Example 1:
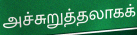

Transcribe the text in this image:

அச்சுறுத்தலாகக்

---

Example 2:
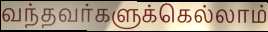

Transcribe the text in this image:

வந்தவர்களுக்கெல்லாம்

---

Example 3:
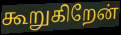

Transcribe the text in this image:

கூறுகிறேன்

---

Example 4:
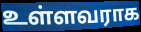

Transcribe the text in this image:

உள்ளவராக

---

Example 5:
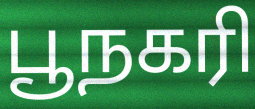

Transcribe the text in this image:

பூநகரி